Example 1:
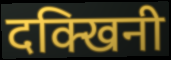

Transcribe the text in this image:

दक्खिनी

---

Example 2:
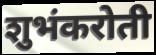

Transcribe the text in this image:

शुभंकरोती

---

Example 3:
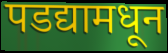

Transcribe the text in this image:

पडद्यामधून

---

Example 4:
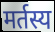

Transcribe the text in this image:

मर्तस्य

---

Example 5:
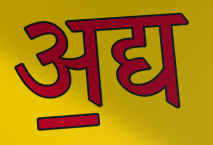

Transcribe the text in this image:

अ॒द्य